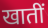
खातीं